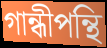
গান্ধীপন্থি